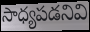
సాధ్యపడనివి